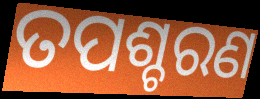
ତପଶ୍ଚରଣ